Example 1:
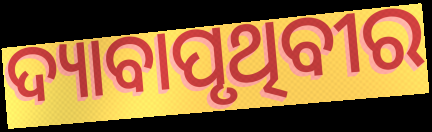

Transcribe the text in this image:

ଦ୍ୟାବାପୃଥିବୀର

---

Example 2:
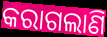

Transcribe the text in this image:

କରାଗଲାଣି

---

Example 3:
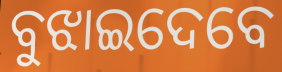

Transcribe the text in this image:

ବୁଝାଇଦେବେ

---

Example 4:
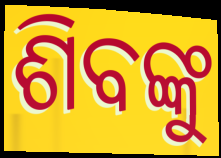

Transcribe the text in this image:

ଶିବଙ୍କୁ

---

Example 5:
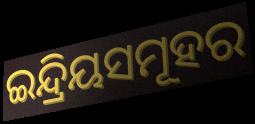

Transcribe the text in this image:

ଇନ୍ଦ୍ରିୟସମୂହର